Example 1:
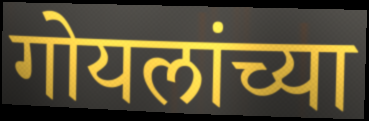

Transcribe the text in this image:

गोयलांच्या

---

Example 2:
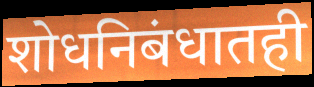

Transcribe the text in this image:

शोधनिबंधातही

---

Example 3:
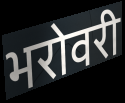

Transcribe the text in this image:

भरोवरी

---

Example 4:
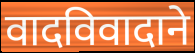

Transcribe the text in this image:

वादविवादाने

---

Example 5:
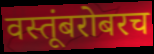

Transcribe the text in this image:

वस्तूंबरोबरच